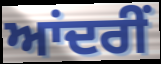
ਆਂਦਰੀਂ